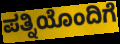
ಪತ್ನಿಯೊಂದಿಗೆ